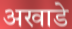
अखाडे